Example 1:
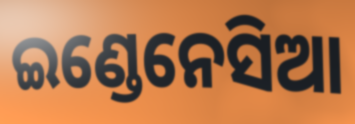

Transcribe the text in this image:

ଇଣ୍ଡେନେସିଆ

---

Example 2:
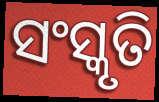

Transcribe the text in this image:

ସଂସ୍କୃତି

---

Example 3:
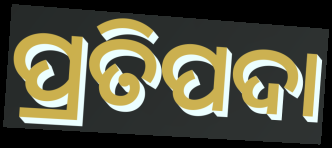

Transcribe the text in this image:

ପ୍ରତିପଦା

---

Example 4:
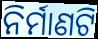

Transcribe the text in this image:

ନିର୍ମାଣଟି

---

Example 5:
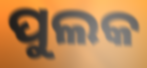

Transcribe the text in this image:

ପୁଲକ